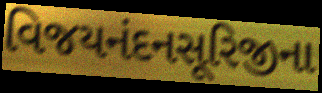
વિજયનંદનસૂરિજીના